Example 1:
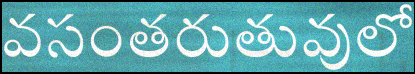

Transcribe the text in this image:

వసంతరుతువులో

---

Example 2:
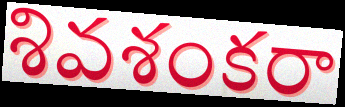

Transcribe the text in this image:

శివశంకరా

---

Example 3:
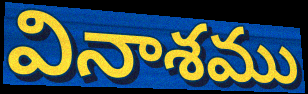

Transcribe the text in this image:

వినాశము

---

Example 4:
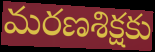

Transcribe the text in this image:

మరణశిక్షకు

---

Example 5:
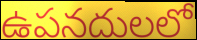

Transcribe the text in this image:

ఉపనదులలో